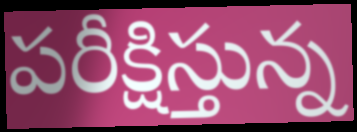
పరీక్షిస్తున్న